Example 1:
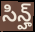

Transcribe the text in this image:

సిన్హ్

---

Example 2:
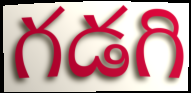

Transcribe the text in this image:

గడగి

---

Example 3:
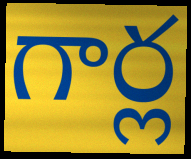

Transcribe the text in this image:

గార్ల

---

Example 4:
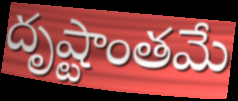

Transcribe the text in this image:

దృష్టాంతమే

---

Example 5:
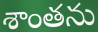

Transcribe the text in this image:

శాంతను